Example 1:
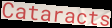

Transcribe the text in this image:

Cataracts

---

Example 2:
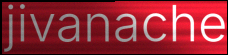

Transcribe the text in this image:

jivanache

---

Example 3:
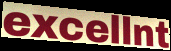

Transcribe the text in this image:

excellnt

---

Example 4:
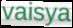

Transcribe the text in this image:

vaisya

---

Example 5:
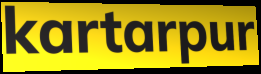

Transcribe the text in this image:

kartarpur